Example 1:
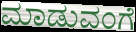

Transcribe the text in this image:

ಮಾಡುವಂಗೆ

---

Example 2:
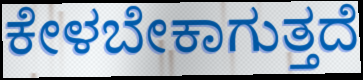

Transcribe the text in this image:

ಕೇಳಬೇಕಾಗುತ್ತದೆ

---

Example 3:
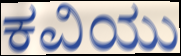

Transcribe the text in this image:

ಕವಿಯು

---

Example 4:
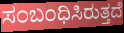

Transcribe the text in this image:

ಸಂಬಂಧಿಸಿರುತ್ತದೆ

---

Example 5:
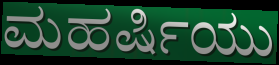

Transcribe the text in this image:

ಮಹರ್ಷಿಯು